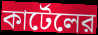
কার্টেলের